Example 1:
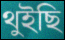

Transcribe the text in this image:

থুইছি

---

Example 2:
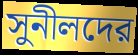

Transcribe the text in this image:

সুনীলদের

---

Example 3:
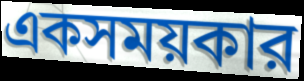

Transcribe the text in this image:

একসময়কার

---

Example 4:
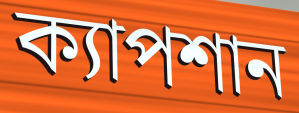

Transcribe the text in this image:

ক্যাপশান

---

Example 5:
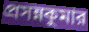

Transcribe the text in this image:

প্রসন্নকুমার